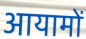
आयामों